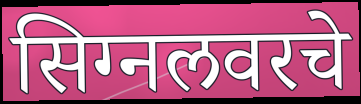
सिग्नलवरचे